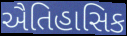
ઐતિહાસિક